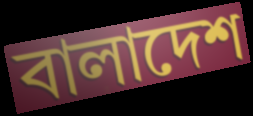
বালাদেশ